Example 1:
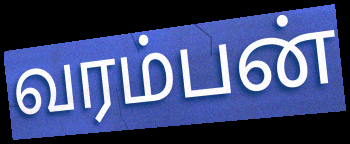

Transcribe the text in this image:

வரம்பன்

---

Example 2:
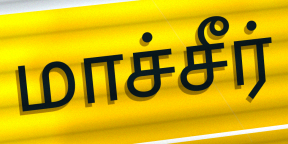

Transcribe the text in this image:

மாச்சீர்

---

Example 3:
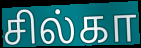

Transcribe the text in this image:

சில்கா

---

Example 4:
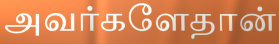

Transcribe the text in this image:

அவர்களேதான்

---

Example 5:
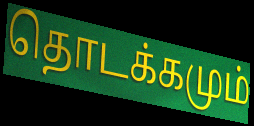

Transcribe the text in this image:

தொடக்கமும்